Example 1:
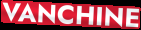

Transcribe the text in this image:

VANCHINE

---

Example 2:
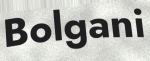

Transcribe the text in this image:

Bolgani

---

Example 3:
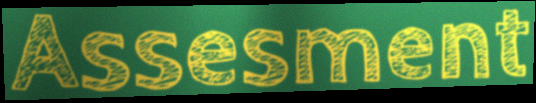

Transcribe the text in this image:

Assesment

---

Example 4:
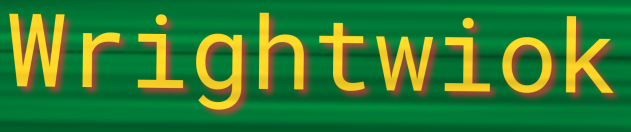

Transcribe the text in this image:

Wrightwiok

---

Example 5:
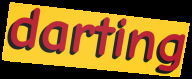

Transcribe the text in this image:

darting